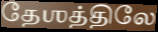
தேஶத்திலே